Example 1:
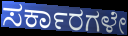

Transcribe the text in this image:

ಸರ್ಕಾರಗಳೇ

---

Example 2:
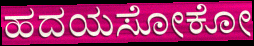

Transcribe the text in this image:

ಹದಯಸೋಕೋ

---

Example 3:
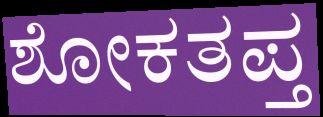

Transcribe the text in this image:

ಶೋಕತಪ್ತ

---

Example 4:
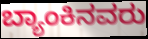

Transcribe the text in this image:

ಬ್ಯಾಂಕಿನವರು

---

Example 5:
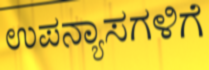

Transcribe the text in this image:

ಉಪನ್ಯಾಸಗಳಿಗೆ